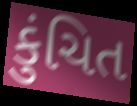
કુંચિત